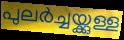
പുലർച്ചയ്ക്കുള്ള